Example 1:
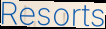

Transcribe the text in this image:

Resorts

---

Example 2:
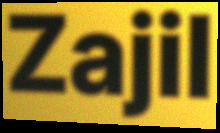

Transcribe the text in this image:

Zajil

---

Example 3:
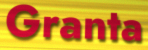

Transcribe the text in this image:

Granta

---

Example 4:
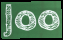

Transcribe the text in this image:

Joo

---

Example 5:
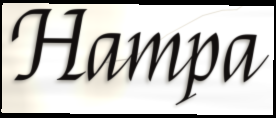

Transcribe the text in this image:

Hampa